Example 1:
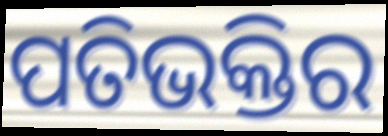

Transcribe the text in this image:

ପତିଭକ୍ତିର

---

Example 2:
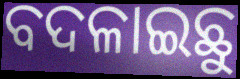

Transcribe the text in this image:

ବଦଳାଇଛୁ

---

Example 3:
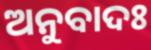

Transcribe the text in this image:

ଅନୁବାଦଃ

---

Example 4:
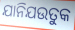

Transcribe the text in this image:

ଯାନିଯଉତୁକ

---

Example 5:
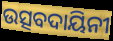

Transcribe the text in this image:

ଉତ୍ସବଦାୟିନୀ